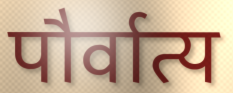
पौर्वात्य